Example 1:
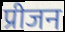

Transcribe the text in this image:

प्रीजन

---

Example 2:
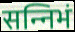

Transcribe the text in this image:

सन्निभं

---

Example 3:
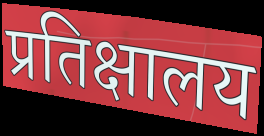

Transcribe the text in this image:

प्रतिक्षालय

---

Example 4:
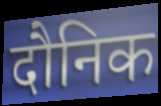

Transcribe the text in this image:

दौनिक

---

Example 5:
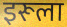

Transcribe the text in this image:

इरूला